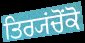
ਤਿਰ੍ਯਂਚੋਂਕੋ